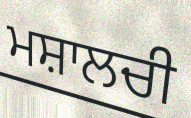
ਮਸ਼ਾਲਚੀ